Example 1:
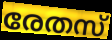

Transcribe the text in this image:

രേതസ്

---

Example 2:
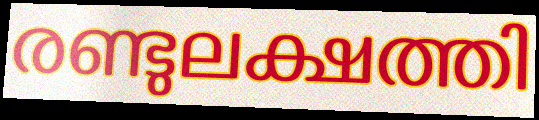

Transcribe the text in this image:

രണ്ടുലക്ഷത്തി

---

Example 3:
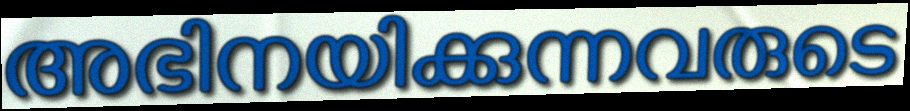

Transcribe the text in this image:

അഭിനയിക്കുന്നവരുടെ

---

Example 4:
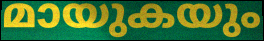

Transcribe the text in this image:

മായുകയും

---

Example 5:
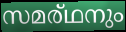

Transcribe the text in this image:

സമര്ഥനും